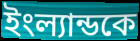
ইংল্যান্ডকে